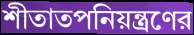
শীতাতপনিয়ন্ত্রণের